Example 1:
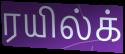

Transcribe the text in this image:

ரயில்க்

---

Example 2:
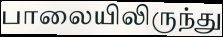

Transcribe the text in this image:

பாலையிலிருந்து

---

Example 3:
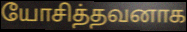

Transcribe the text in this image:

யோசித்தவனாக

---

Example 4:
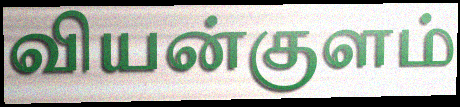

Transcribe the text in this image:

வியன்குளம்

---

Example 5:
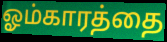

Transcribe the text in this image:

ஓம்காரத்தை